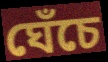
ঘেঁচে